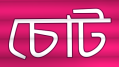
চোট